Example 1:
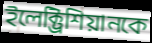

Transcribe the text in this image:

ইলেক্ট্রিশিয়ানকে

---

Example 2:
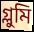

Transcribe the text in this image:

গ্লুমি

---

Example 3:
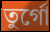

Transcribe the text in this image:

তুর্গো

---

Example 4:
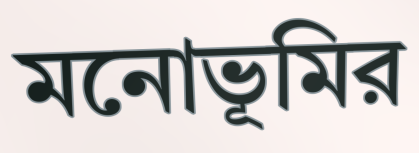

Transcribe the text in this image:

মনোভূমির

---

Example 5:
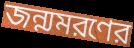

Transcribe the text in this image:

জন্মমরণের